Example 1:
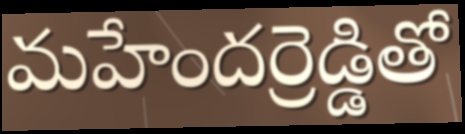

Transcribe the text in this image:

మహేందర్రెడ్డితో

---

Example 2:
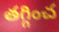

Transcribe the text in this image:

తగ్గించ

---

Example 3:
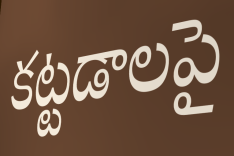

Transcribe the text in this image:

కట్టడాలపై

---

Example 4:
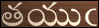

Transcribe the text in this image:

తయుఁ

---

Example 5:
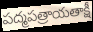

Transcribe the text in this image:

పద్మపత్రాయతాక్షీ